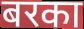
बरका